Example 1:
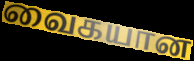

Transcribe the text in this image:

வைகயான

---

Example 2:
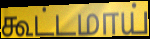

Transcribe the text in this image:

கூட்டமாய்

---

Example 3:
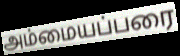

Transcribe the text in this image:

அம்மையப்பரை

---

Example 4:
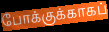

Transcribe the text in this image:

போக்குக்காகப்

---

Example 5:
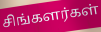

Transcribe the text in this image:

சிங்களர்கள்